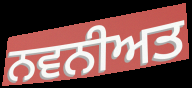
ਨਵਨੀਅਤ